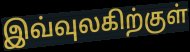
இவ்வுலகிற்குள்